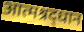
आत्मश्रद्धान